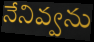
నేనివ్వను